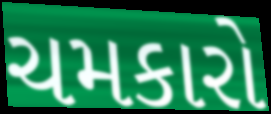
ચમકારો